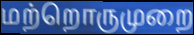
மற்றொருமுறை